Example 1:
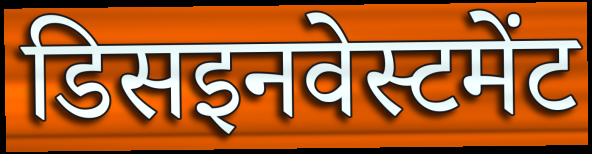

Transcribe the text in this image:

डिसइनवेस्टमेंट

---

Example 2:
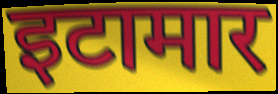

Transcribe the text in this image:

इटामार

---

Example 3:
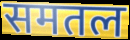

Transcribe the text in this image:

समतल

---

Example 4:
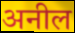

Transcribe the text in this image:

अनील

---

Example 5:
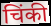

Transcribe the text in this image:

चिंकी